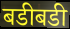
बडीबडी